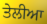
ਤੇਲੀਆ